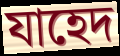
যাহেদ